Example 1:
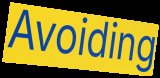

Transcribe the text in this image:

Avoiding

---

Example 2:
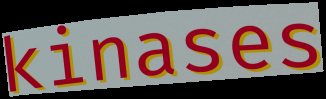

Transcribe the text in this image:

kinases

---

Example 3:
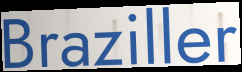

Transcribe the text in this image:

Braziller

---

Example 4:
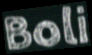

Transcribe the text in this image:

Boli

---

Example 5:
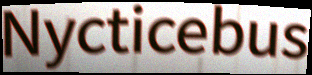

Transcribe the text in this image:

Nycticebus